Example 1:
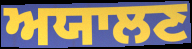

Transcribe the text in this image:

ਅਯਾਲਣ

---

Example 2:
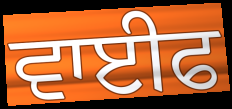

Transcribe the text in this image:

ਵਾਈਫ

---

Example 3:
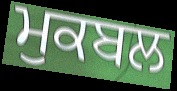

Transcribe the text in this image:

ਮੁਕਬਲ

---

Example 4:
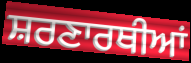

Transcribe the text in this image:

ਸ਼ਰਣਾਰਥੀਆਂ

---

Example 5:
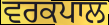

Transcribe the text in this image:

ਵਰਕਪਾਲ